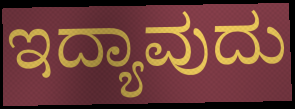
ಇದ್ಯಾವುದು